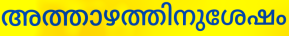
അത്താഴത്തിനുശേഷം